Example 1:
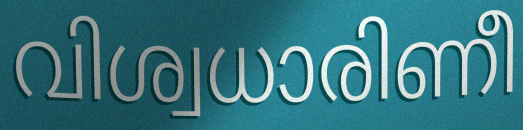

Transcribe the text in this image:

വിശ്വധാരിണീ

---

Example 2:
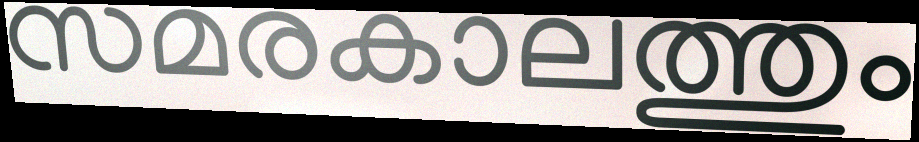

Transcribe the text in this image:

സമരകാലത്തും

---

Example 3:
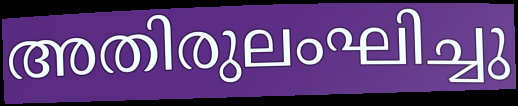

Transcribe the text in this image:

അതിരുലംഘിച്ചു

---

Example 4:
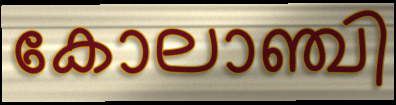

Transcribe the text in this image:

കോലാഞ്ചി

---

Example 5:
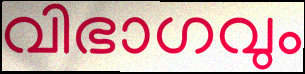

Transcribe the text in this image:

വിഭാഗവും